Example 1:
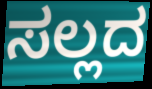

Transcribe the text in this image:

ಸಲ್ಲದ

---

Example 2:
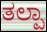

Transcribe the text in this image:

ತಲ್ಪಾ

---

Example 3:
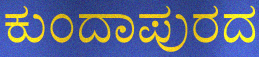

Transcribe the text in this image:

ಕುಂದಾಪುರದ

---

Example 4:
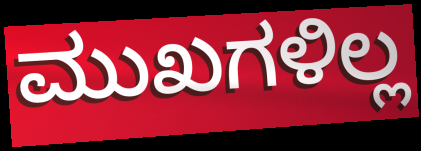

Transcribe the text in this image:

ಮುಖಗಳಿಲ್ಲ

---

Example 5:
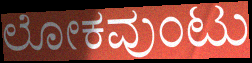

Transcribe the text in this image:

ಲೋಕವುಂಟು